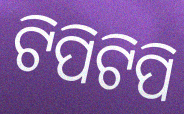
ଟିପିଟିପି